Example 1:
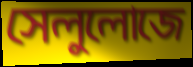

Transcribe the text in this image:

সেলুলোজে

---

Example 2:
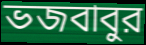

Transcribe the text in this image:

ভজবাবুর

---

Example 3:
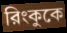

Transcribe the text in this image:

রিংকুকে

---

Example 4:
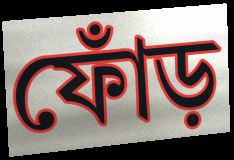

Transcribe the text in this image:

ফোঁড়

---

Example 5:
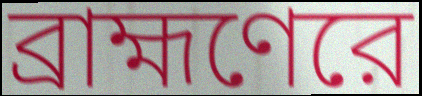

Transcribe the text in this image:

ব্রাহ্মণেরে